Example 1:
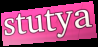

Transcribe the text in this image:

stutya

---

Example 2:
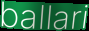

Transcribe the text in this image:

ballari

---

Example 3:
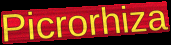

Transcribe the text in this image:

Picrorhiza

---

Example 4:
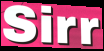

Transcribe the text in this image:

Sirr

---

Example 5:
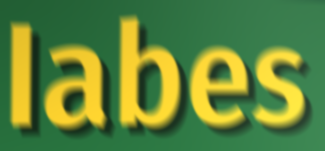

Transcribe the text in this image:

Iabes